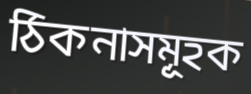
ঠিকনাসমূহক